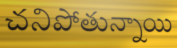
చనిపోతున్నాయి